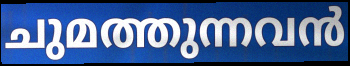
ചുമത്തുന്നവൻ